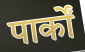
पार्कों